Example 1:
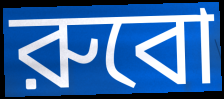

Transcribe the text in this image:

রুবো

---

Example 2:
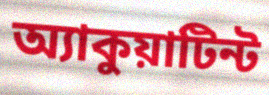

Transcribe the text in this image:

অ্যাকুয়াটিন্ট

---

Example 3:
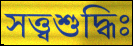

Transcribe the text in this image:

সত্ত্বশুদ্ধিঃ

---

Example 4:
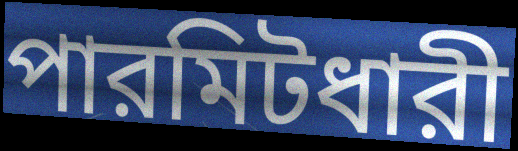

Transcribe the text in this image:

পারমিটধারী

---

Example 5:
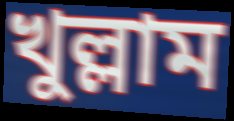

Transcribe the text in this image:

খুল্লাম